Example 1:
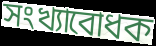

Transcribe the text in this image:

সংখ্যাবোধক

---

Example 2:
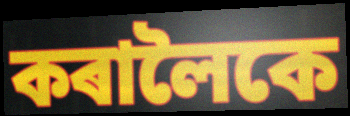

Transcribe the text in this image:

কৰালৈকে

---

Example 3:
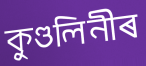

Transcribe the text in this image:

কুণ্ডলিনীৰ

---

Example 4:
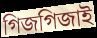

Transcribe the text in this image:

গিজগিজাই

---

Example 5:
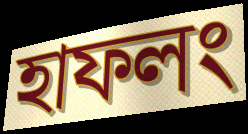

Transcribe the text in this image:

হাফলং